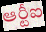
ఆర్టీఐ